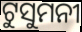
ଟୁସୁମନୀ